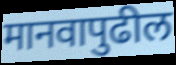
मानवापुढील